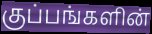
குப்பங்களின்